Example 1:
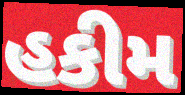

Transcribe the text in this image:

હકીમ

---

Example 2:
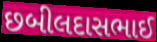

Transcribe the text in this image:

છબીલદાસભાઈ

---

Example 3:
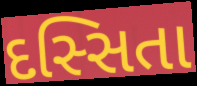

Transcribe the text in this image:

દસ્સિતા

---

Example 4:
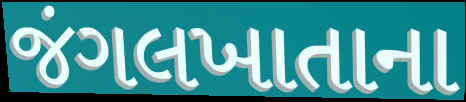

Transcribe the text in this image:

જંગલખાતાના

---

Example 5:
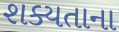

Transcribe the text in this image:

શક્યતાના